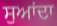
ਸੁਆਂਦਾ